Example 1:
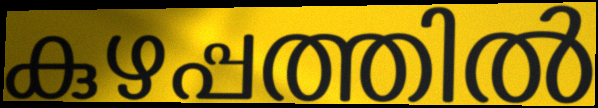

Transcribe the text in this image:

കുഴപ്പത്തിൽ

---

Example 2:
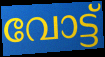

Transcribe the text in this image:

വോട്ട്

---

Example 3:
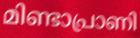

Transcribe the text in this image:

മിണ്ടാപ്രാണി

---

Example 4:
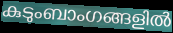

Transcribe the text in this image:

കുടുംബാംഗങ്ങളിൽ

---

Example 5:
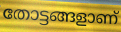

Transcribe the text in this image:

തോട്ടങ്ങളാണ്